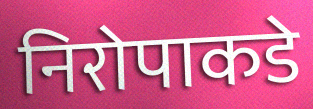
निरोपाकडे